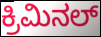
ಕ್ರಿಮಿನಲ್